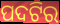
ପଦଟିର